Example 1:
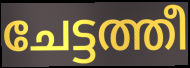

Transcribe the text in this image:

ചേട്ടത്തീ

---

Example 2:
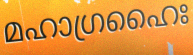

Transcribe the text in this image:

മഹാഗ്രഹൈഃ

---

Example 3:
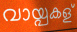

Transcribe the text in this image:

വായ്പകള്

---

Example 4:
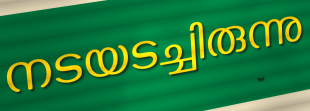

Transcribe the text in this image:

നടയടച്ചിരുന്നു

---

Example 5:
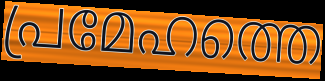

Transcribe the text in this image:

പ്രമേഹത്തെ